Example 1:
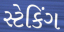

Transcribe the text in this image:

સ્ટેકિંગ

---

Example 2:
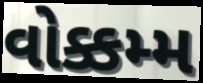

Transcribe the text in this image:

વોક્કમ્મ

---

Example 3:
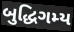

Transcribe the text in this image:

બુદ્ધિગમ્ય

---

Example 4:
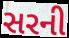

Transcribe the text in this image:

સરની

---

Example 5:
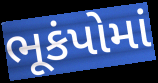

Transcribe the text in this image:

ભૂકંપોમાં